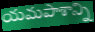
యమపాశాన్ని